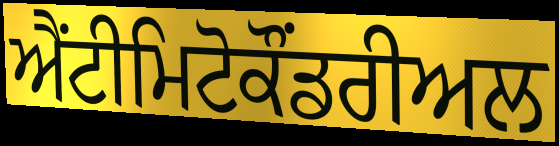
ਐਂਟੀਮਿਟੋਕੌਂਡਰੀਅਲ